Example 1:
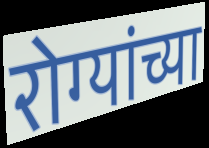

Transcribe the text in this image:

रोग्यांच्या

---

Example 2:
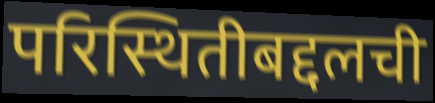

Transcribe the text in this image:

परिस्थितीबद्दलची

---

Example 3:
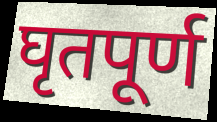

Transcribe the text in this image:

घृतपूर्ण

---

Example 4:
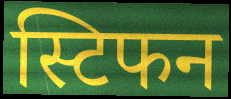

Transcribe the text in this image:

स्टिफन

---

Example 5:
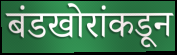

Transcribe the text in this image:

बंडखोरांकडून